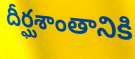
దీర్ఘశాంతానికి